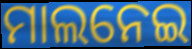
ମାଲନେଇ